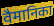
वैमानिका